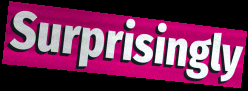
Surprisingly